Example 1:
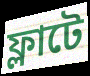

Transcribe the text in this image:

ফ্লাটে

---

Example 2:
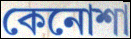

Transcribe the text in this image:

কেনোশা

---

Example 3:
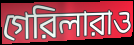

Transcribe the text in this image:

গেরিলারাও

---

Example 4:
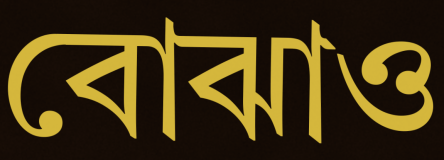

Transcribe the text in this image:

বোঝাও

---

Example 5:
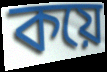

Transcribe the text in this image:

কয়ে